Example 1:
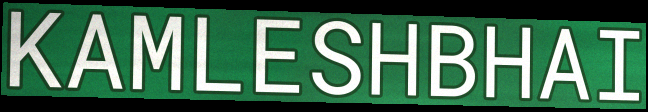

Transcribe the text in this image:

KAMLESHBHAI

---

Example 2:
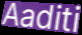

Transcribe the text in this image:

Aaditi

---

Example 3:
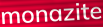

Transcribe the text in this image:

monazite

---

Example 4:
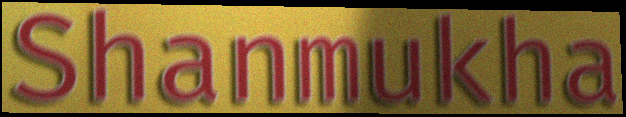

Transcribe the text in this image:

Shanmukha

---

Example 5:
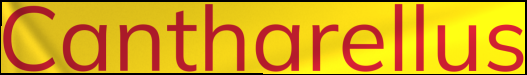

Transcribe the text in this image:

Cantharellus